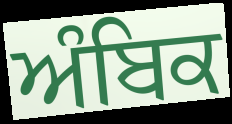
ਅੰਬਿਕ